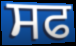
ਸਫ